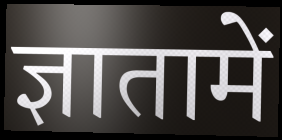
ज्ञातामें